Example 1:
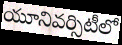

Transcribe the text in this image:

యూనివర్సిటీలో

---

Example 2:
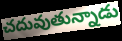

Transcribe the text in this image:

చదువుతున్నాడు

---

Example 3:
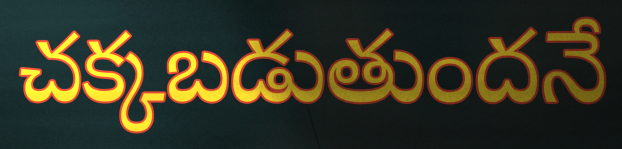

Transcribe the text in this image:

చక్కబడుతుందనే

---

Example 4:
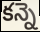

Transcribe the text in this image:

కన్నె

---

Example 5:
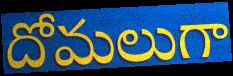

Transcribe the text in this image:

దోమలుగా